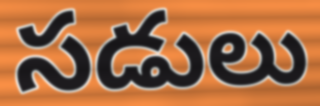
సడులు